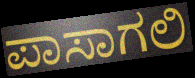
ಪಾಸಾಗಲಿ